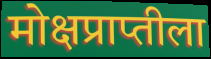
मोक्षप्राप्तीला